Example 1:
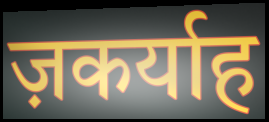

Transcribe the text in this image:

ज़कर्याह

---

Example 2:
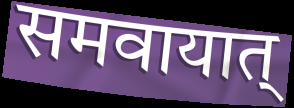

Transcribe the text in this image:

समवायात्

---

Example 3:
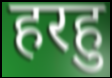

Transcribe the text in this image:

हरहु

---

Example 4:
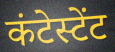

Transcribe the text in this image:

कंटेस्टेंट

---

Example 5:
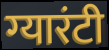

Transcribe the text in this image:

ग्‍यारंटी